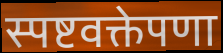
स्पष्टवक्तेपणा